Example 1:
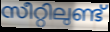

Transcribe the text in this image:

സീറ്റിലുണ്ട്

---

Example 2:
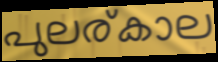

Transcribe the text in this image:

പുലര്കാല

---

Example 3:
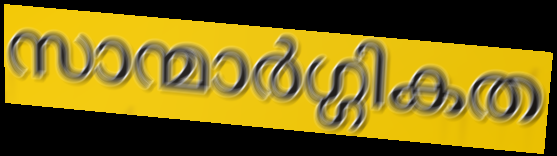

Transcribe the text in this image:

സാന്മാർഗ്ഗികത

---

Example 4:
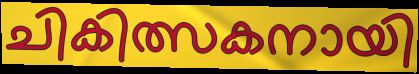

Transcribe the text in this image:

ചികിത്സകനായി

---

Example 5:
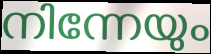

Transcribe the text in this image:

നിന്നേയും